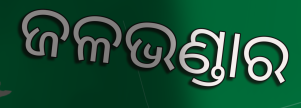
ଜଳଭଣ୍ଡାର